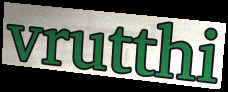
vrutthi